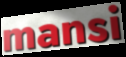
mansi